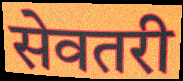
सेवतरी